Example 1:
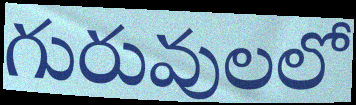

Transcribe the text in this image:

గురువులలో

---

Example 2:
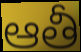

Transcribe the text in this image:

ఆతీ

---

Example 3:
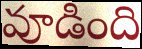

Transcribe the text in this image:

వూడింది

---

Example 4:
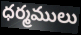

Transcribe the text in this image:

ధర్మములు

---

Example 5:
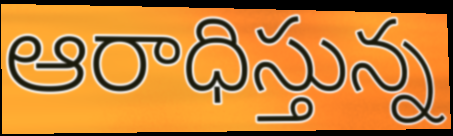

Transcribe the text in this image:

ఆరాధిస్తున్న